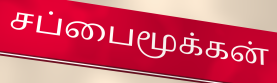
சப்பைமூக்கன்